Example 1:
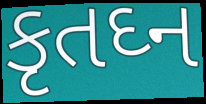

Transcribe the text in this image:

કૃતઘ્ન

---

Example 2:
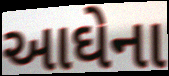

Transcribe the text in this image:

આઘેના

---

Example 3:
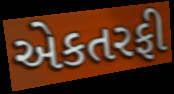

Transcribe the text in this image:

એકતરફી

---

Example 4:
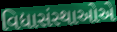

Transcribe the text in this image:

વિદ્યાસંસ્થાઓએ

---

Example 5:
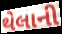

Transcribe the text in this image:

થેલાની